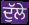
ਦੁੱਲੇ